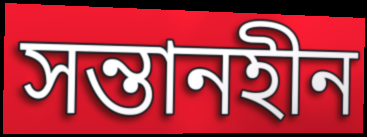
সন্তানহীন